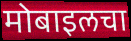
मोबाइलचा